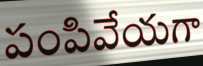
పంపివేయగా